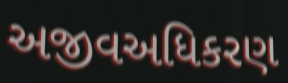
અજીવઅધિકરણ